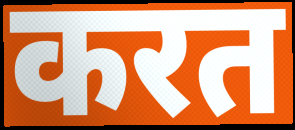
करत